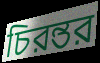
চিরন্তর